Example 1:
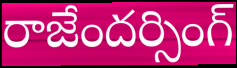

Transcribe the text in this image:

రాజేందర్సింగ్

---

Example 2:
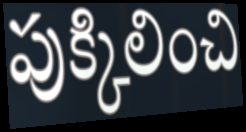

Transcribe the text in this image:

పుక్కిలించి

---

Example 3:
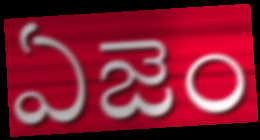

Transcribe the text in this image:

ఏజెం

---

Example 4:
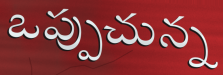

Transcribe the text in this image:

ఒప్పుచున్న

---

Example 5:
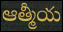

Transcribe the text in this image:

ఆత్మీయ